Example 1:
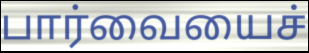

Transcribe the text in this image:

பார்வையைச்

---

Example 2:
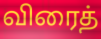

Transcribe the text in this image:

விரைத்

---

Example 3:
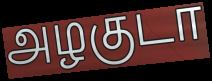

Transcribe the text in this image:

அழகுடா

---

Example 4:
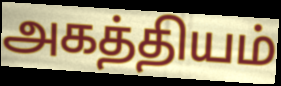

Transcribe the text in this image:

அகத்தியம்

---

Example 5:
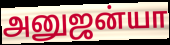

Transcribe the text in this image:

அனுஜன்யா